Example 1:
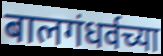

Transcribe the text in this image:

बालगंधर्वच्या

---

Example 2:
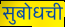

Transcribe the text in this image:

सुबोधची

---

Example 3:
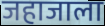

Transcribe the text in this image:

जहाजाला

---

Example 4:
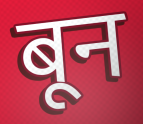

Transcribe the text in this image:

बून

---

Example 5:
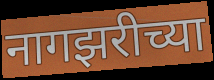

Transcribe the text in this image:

नागझरीच्या